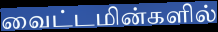
வைட்டமின்களில்